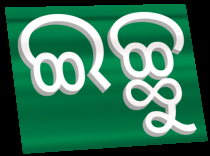
ଇଚ୍ଛୁ